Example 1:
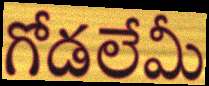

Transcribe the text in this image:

గోడలేమీ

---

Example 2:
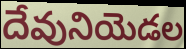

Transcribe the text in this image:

దేవునియెడల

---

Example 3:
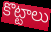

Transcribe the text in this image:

కొట్టాలు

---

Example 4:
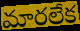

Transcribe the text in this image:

మారలేక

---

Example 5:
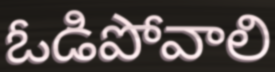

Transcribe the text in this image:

ఓడిపోవాలి